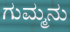
ಗುಮ್ಮನು